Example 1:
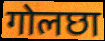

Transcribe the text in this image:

गोलछा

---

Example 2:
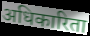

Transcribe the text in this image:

अधिकारिता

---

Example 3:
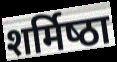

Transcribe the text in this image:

शर्मिष्‍ठा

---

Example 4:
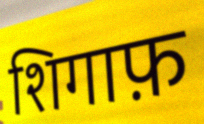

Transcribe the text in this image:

शिगाफ़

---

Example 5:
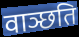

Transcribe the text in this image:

वाञ्छति